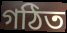
গঠিত